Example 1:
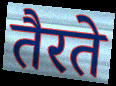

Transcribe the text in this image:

तैरते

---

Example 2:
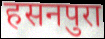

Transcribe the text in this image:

हसनपुरा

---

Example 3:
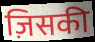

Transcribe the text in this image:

ज़िसकी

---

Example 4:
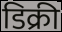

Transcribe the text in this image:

डिक्री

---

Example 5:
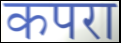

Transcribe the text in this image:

कपरा